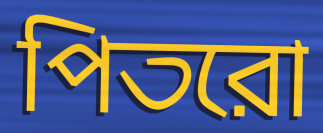
পিতরো